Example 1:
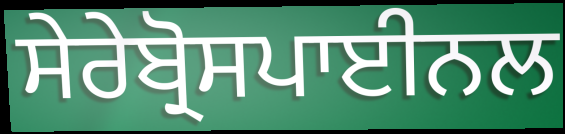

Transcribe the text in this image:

ਸੇਰੇਬ੍ਰੋਸਪਾਈਨਲ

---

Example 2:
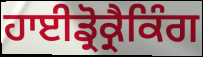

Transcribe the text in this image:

ਹਾਈਡ੍ਰੋਕ੍ਰੈਕਿੰਗ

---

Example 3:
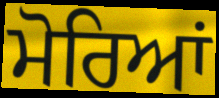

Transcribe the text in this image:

ਮੋਰਿਆਂ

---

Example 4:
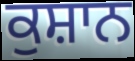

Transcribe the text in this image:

ਕੁਸ਼ਾਨ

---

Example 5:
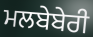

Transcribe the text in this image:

ਮਲਬੇਬੇਰੀ